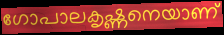
ഗോപാലകൃഷ്ണനെയാണ്